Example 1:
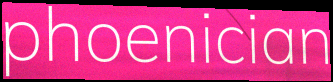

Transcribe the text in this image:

phoenician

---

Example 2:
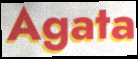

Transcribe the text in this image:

Agata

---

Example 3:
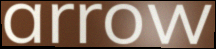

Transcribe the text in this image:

arrow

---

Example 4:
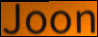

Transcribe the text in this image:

Joon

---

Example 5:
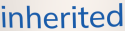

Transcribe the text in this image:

inherited